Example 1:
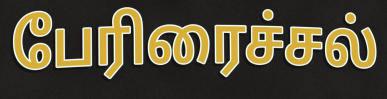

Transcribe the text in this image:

பேரிரைச்சல்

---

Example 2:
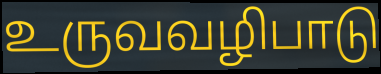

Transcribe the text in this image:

உருவவழிபாடு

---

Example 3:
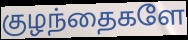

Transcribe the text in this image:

குழந்தைகளே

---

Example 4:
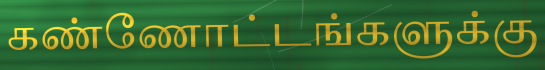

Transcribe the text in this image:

கண்ணோட்டங்களுக்கு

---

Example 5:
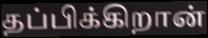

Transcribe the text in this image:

தப்பிக்கிறான்